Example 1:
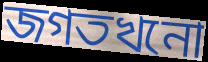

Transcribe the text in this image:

জগতখনো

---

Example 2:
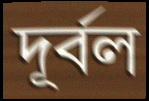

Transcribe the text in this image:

দূৰ্বল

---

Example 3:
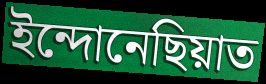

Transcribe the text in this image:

ইন্দোনেছিয়াত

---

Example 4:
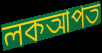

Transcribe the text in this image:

লকআপত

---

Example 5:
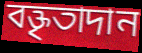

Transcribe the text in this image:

বক্তৃতাদান